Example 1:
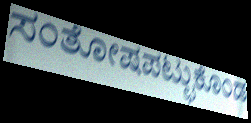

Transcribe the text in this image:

ಸಂತೋಷಪಟ್ಟುಕೊಂಡ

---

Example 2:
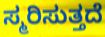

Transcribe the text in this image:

ಸ್ಮರಿಸುತ್ತದೆ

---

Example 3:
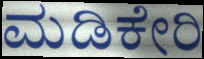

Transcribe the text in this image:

ಮಡಿಕೇರಿ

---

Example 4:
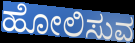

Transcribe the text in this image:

ಹೋಲಿಸುವ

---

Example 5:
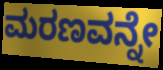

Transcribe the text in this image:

ಮರಣವನ್ನೇ